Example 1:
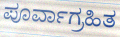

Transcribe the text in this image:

ಪೂರ್ವಾಗ್ರಹಿತ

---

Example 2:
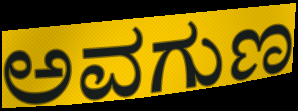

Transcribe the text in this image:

ಅವಗುಣ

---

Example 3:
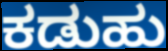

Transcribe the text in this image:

ಕಡುಹು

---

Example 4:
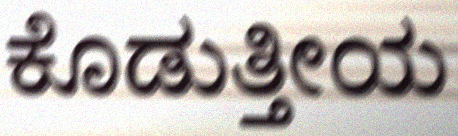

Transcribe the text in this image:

ಕೊಡುತ್ತೀಯ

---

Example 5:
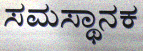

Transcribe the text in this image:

ಸಮಸ್ಥಾನಕ